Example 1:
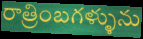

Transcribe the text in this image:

రాత్రింబగళ్ళును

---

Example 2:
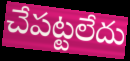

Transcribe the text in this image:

చేపట్టలేదు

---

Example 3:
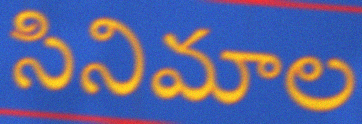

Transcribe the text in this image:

సినిమాల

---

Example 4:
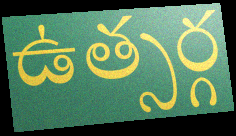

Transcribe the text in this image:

ఉత్సర్గ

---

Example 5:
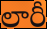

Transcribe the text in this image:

లారీ